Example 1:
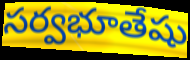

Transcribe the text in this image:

సర్వభూతేషు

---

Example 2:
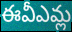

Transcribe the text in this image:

ఈవీఎమ్ల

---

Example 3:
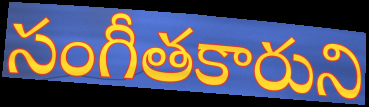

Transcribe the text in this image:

సంగీతకారుని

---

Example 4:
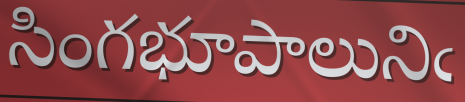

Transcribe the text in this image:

సింగభూపాలునిఁ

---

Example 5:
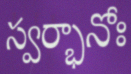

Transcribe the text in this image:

స్వర్భానోః